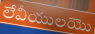
లేవీయులయొ